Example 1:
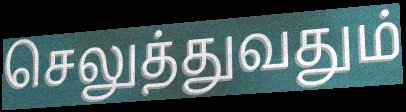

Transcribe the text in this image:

செலுத்துவதும்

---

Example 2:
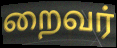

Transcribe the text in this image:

றைவர்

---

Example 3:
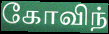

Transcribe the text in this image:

கோவிந்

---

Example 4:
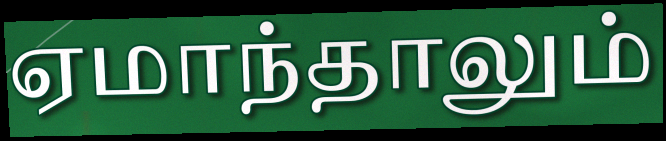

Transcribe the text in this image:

ஏமாந்தாலும்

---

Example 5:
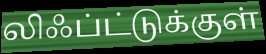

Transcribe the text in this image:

லிஃப்ட்டுக்குள்